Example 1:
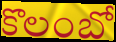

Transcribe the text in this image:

కొలంబో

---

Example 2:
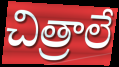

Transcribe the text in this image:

చిత్రాలే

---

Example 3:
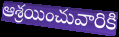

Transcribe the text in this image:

ఆశ్రయించువారికి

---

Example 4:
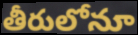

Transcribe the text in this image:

తీరులోనూ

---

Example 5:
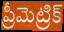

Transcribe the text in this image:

ప్రీమెట్రిక్